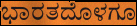
ಭಾರತದೊಳಗೂ